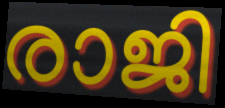
രാജി